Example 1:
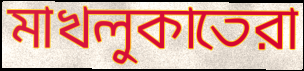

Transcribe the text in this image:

মাখলুকাতেরা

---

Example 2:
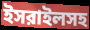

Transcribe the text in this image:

ইসরাইলসহ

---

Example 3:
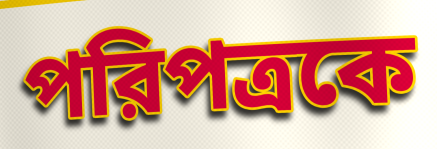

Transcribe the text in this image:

পরিপত্রকে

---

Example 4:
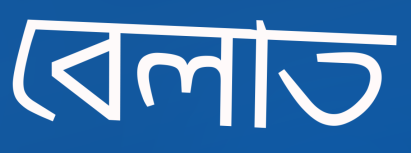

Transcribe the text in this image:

বেলাত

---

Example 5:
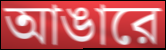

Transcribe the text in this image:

আঙারে